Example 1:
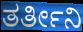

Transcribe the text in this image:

ತರ್ತೀನಿ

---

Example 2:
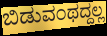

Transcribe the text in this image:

ಬಿಡುವಂಥದ್ದಲ್ಲ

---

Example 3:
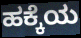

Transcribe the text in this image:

ಹಕ್ಕೆಯ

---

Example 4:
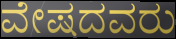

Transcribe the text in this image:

ವೇಷದವರು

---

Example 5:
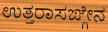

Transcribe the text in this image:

ಉತ್ತರಾಸಙ್ಗೇನ